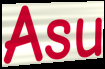
Asu